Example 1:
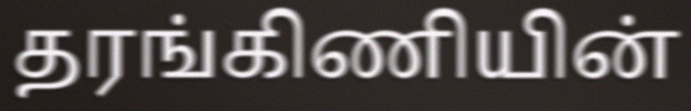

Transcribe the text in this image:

தரங்கிணியின்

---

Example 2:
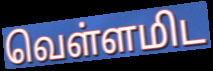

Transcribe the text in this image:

வெள்ளமிட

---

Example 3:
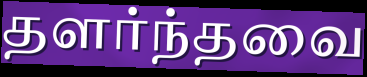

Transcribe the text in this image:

தளர்ந்தவை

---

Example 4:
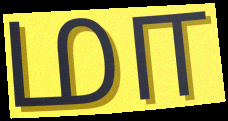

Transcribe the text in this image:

மா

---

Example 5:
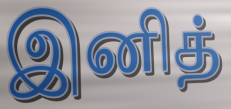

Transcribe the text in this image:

இனித்